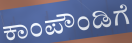
ಕಾಂಪೌಂಡಿಗೆ